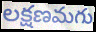
లక్షణమగు